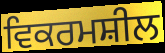
ਵਿਕਰਮਸ਼ੀਲ